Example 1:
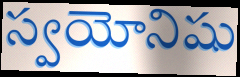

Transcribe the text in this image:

స్వయోనిషు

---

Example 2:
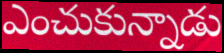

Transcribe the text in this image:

ఎంచుకున్నాడు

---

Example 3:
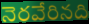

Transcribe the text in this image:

నెరవేరినది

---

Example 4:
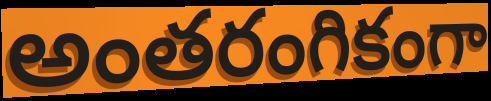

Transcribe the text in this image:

అంతరంగికంగా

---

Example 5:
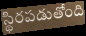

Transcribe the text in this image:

స్థిరపడుతోంది